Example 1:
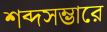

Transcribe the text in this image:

শব্দসম্ভারে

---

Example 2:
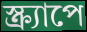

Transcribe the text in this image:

স্ক্র্যাপে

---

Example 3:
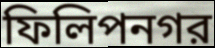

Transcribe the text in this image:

ফিলিপনগর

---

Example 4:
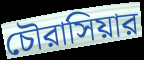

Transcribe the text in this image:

চৌরাসিয়ার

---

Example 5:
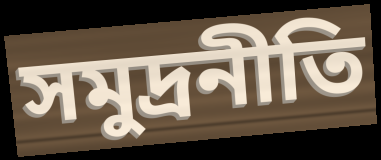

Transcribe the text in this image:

সমুদ্রনীতি